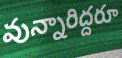
వున్నారిద్దరూ